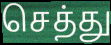
செத்து